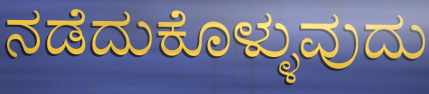
ನಡೆದುಕೊಳ್ಳುವುದು